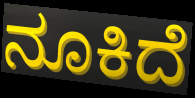
ನೂಕಿದೆ